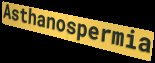
Asthanospermia